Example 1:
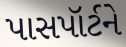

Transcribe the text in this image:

પાસપૉર્ટને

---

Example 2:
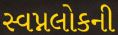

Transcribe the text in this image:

સ્વપ્નલોકની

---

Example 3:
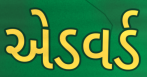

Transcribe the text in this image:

એડવર્ડ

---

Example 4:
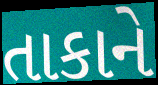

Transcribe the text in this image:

તાકાને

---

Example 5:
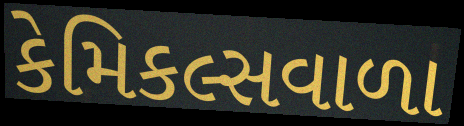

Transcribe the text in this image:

કેમિકલ્સવાળા